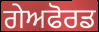
ਗੇਅਫੋਰਡ